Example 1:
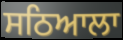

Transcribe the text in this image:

ਸਠਿਆਲਾ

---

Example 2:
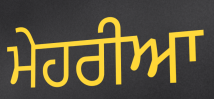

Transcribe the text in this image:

ਮੇਹਰੀਆ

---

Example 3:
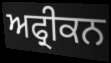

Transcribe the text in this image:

ਅਫ੍ਰੀਕਨ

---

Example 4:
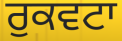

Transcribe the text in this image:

ਰੁਕਵਟਾ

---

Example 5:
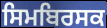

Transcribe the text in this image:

ਸਿਮਬਿਰਸਕ